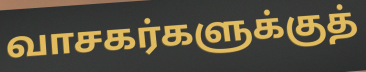
வாசகர்களுக்குத்